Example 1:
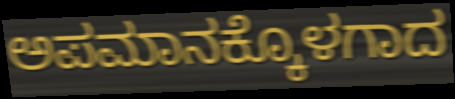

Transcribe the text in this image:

ಅಪಮಾನಕ್ಕೊಳಗಾದ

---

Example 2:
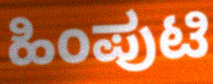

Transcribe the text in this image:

ಹಿಂಪುಟಿ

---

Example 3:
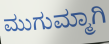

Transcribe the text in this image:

ಮುಗುಮ್ಮಾಗಿ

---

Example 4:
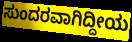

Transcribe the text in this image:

ಸುಂದರವಾಗಿದ್ದೀಯ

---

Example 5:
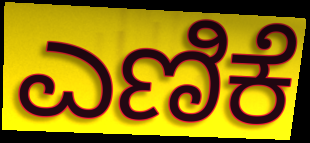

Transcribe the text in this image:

ಎಣಿಕೆ